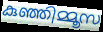
കുഞ്ഞിമ്മൂസ